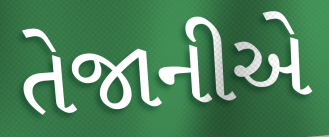
તેજાનીએ